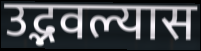
उद्भवल्यास